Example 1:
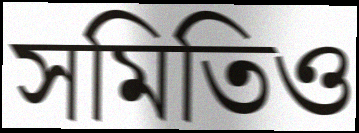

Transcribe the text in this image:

সমিতিও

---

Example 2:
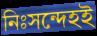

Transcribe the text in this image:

নিঃসন্দেহই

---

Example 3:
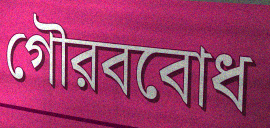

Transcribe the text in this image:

গৌরববোধ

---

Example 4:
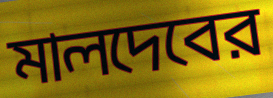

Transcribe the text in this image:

মালদেবের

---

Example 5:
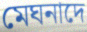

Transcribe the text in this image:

মেঘনাদে